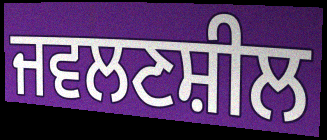
ਜਵਲਣਸ਼ੀਲ